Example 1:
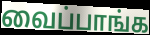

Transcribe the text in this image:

வைப்பாங்க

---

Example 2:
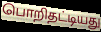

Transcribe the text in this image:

பொறிதட்டியது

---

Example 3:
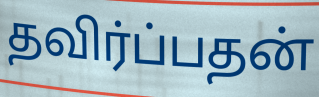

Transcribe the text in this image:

தவிர்ப்பதன்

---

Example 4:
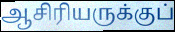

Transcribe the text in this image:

ஆசிரியருக்குப்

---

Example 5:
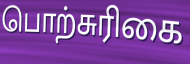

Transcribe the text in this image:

பொற்சுரிகை